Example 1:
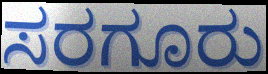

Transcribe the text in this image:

ಸರಗೂರು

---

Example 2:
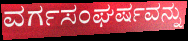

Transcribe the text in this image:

ವರ್ಗಸಂಘರ್ಷವನ್ನು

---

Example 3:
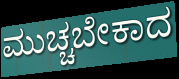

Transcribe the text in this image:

ಮುಚ್ಚಬೇಕಾದ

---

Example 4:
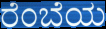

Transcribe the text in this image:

ರೆಂಬೆಯ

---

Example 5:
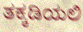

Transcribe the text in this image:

ತಕ್ಕಡಿಯಲಿ